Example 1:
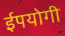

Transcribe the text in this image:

ईपयोगी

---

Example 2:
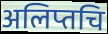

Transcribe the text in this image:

अलिप्तचि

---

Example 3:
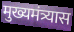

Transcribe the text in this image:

मुख्यमंत्र्यास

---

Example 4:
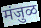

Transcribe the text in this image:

मंजुळ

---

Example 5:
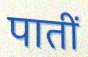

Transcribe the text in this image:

पातीं